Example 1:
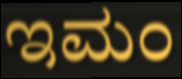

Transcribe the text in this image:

ಇಮಂ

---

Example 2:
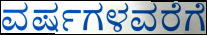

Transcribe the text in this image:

ವರ್ಷಗಳವರೆಗೆ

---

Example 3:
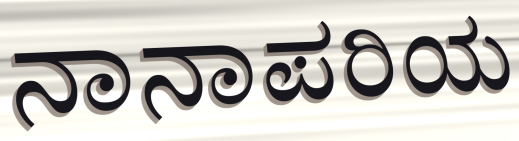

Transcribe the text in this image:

ನಾನಾಪರಿಯ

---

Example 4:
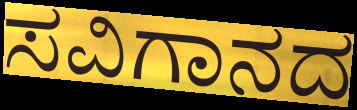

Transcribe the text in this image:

ಸವಿಗಾನದ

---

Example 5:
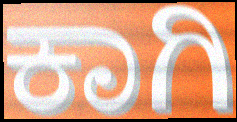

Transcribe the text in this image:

ಕಾಗಿ